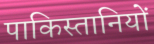
पाकिस्तानियों